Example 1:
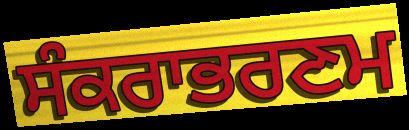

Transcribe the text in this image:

ਸੰਕਰਾਭਰਣਮ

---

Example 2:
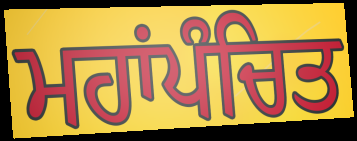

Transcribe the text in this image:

ਮਹਾਂਪੰਚਿਤ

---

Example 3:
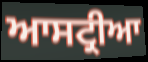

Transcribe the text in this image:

ਆਸਟ੍ਰੀਆ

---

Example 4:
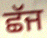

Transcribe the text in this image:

ਛੱਜ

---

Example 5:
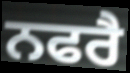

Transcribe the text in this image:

ਨਫਰੈ